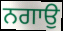
ਨਗਾਉ